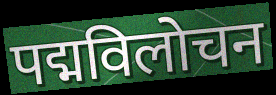
पद्मविलोचन